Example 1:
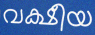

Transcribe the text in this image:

വക്ഷീയ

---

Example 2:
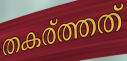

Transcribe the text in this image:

തകര്ത്തത്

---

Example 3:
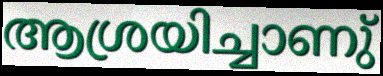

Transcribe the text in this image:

ആശ്രയിച്ചാണു്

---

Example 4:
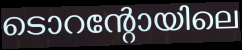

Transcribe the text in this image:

ടൊറന്റോയിലെ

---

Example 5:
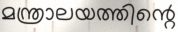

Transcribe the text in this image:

മന്ത്രാലയത്തിന്റെ